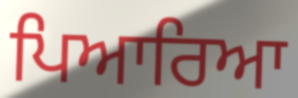
ਪਿਆਰਿਆ